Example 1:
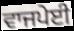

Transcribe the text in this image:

ਵਾਜਪੇਈ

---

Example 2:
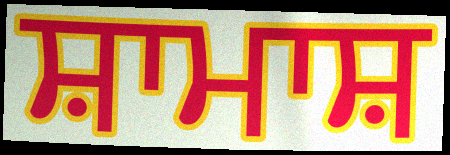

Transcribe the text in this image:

ਸ਼ਾਮਾਸ਼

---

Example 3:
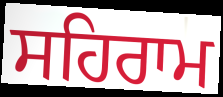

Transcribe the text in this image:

ਸਹਿਰਾਮ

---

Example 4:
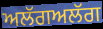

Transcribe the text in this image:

ਅਲੱਗਅਲੱਗ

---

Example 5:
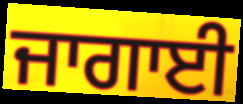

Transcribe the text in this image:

ਜਾਗਾਈ